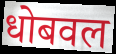
धोबवल